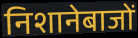
निशानेबाजों